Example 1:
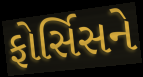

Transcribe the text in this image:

ફોર્સિસને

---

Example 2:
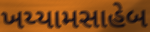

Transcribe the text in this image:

ખય્યામસાહેબ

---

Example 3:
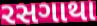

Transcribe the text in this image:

રસગાથા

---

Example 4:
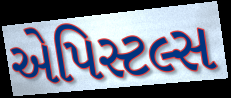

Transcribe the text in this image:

એપિસ્ટલ્સ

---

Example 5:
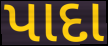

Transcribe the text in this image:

પાદા